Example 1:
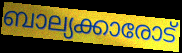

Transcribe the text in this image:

ബാല്യക്കാരോട്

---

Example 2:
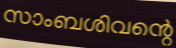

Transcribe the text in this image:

സാംബശിവന്റെ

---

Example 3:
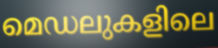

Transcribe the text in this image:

മെഡലുകളിലെ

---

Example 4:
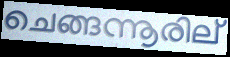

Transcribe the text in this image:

ചെങ്ങന്നൂരില്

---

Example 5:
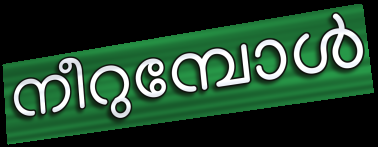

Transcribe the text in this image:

നീറുമ്പോൾ